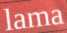
lama